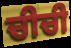
ਚੀਚੀ